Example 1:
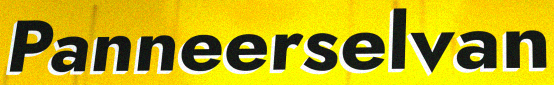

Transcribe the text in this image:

Panneerselvan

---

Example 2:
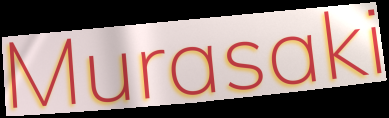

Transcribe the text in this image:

Murasaki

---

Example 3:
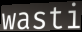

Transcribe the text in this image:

wasti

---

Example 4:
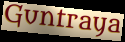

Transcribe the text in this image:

Guntraya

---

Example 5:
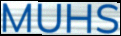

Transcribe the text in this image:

MUHS